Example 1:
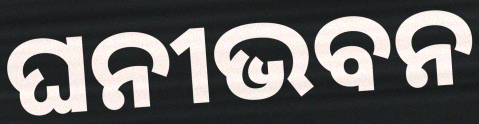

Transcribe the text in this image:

ଘନୀଭବନ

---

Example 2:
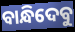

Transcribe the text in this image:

ବାନ୍ଧିଦେବୁ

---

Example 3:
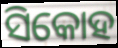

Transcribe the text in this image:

ସିକୋହ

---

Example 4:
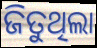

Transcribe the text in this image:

ଜିତୁଥିଲା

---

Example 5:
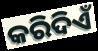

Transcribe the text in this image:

କରିଦିଏଁ